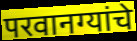
परवानग्यांचे